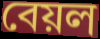
বেয়ল